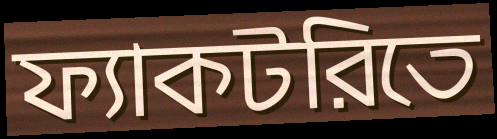
ফ্যাকটরিতে